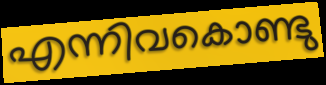
എന്നിവകൊണ്ടു